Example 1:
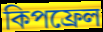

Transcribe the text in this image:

কিপফ্রেল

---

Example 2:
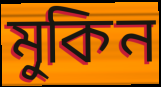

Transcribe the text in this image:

মুকিন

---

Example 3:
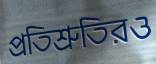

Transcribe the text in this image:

প্রতিশ্রুতিরও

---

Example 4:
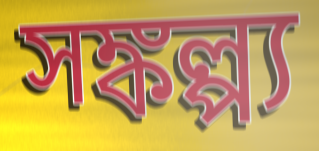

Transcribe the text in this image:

সঙ্কল্প্য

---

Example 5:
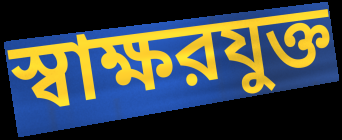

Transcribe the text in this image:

স্বাক্ষরযুক্ত